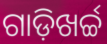
ଗାଡ଼ିଖର୍ଚ୍ଚ